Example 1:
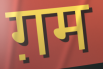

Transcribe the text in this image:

ग़म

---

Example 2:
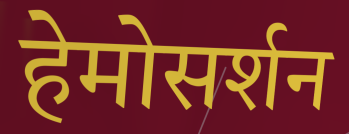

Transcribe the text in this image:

हेमोसर्शन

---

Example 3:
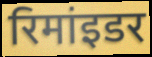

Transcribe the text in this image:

रिमांइडर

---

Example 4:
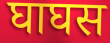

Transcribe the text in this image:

घाघस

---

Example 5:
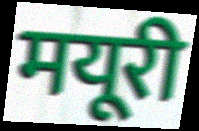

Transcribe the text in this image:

मयूरी